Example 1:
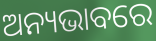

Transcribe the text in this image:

ଅନ୍ୟଭାବରେ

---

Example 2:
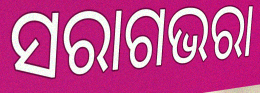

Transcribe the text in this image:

ସରାଗଭରା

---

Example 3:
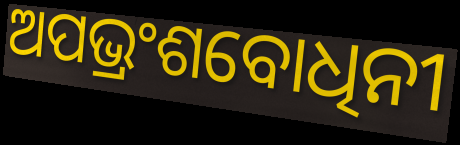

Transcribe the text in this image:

ଅପଭ୍ରଂଶବୋଧିନୀ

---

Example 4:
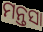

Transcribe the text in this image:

ମନ୍ତସା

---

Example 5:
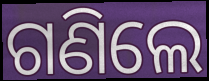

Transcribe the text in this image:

ଗଣିଲେ